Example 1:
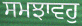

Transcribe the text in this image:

ਸਮਝਾਵਹੁ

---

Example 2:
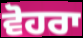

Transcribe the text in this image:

ਵੋਹਰਾ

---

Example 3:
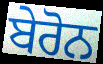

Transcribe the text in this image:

ਬੇਰੋਨ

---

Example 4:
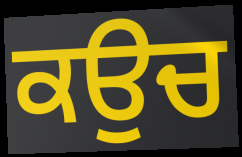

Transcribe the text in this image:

ਕਉਚ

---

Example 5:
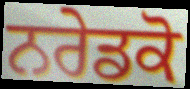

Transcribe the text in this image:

ਨਰੇਡਕੋ